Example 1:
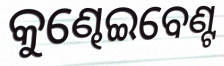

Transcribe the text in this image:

କୁଣ୍ଢେଇବେଣ୍ଟ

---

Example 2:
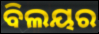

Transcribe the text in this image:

ବିଲୟର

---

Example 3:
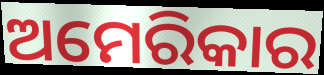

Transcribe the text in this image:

ଅମେରିକାର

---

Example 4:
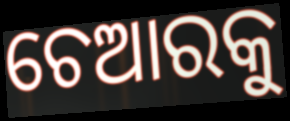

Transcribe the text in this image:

ଚେଆରକୁ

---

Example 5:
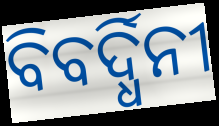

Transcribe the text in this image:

ବିବର୍ଦ୍ଧିନୀ